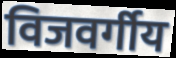
विजवर्गीय